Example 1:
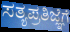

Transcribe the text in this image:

ಸತ್ಯಪ್ರತಿಜ್ಞೆಗೆ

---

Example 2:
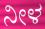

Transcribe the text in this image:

ನೀಳ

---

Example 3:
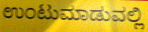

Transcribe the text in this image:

ಉಂಟುಮಾಡುವಲ್ಲಿ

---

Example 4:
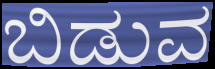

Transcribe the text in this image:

ಬಿಡುವ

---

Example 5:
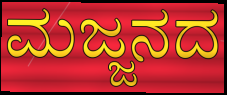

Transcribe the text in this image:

ಮಜ್ಜನದ